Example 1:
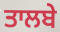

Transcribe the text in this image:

ਤਾਲਬੇ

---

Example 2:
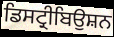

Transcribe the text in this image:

ਡਿਸਟ੍ਰੀਬਿਉਸ਼ਨ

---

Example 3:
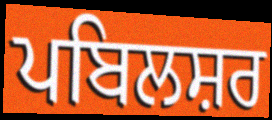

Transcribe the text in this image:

ਪਬਿਲਸ਼ਰ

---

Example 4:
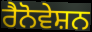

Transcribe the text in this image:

ਰੈਨੋਵੇਸ਼ਨ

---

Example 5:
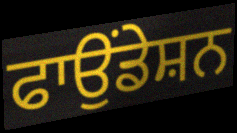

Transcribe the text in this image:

ਫਾਉਂਡੇਸ਼ਨ